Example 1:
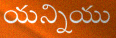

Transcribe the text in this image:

యన్నియు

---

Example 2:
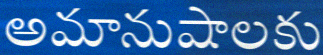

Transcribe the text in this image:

అమానుషాలకు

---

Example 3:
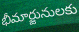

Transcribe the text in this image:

భీమార్జునులకు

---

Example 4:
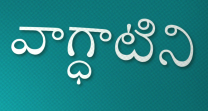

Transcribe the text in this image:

వాగ్ధాటిని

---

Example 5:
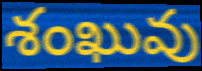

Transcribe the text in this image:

శంఖువు